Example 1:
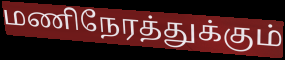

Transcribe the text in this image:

மணிநேரத்துக்கும்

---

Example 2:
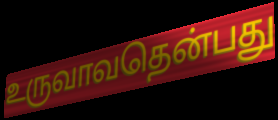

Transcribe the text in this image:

உருவாவதென்பது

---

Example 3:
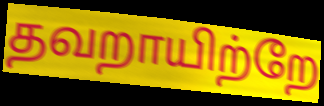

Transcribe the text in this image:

தவறாயிற்றே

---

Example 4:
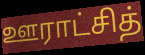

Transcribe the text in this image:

ஊராட்சித்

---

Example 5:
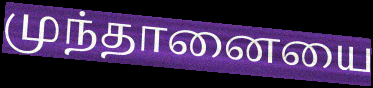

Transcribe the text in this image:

முந்தானையை